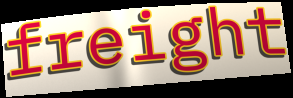
freight